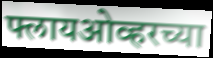
फ्लायओव्हरच्या